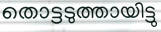
തൊട്ടടുത്തായിട്ടു